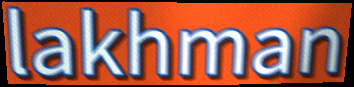
lakhman